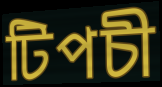
টিপচী